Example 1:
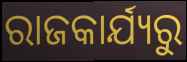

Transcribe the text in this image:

ରାଜକାର୍ଯ୍ୟରୁ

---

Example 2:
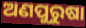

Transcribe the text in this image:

ଅଣପୁରୁଷା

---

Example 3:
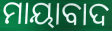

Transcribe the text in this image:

ମାୟାବାଦ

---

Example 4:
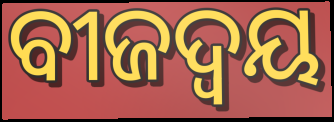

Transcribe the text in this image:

ବୀଜଦ୍ଵୟ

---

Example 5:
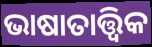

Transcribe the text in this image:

ଭାଷାତାତ୍ତ୍ୱିକ